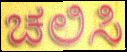
ಚಲಿಸಿ